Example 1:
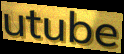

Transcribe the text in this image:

utube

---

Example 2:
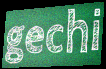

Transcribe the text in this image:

gechi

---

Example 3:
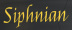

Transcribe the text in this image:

Siphnian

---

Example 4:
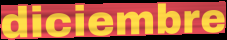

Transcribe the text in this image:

diciembre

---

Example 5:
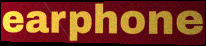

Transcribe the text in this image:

earphone